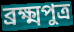
ব্ৰক্ষ্মপুত্ৰ